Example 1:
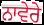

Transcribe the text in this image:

ਨਾਵੇਰੇ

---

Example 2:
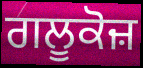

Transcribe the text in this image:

ਗਲੂਕੋਜ਼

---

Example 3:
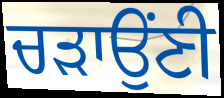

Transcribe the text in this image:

ਚੜਾਉਂਣੀ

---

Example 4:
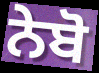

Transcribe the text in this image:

ਨੇਬੋ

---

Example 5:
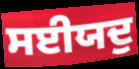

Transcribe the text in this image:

ਸਈਯਦੁ